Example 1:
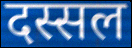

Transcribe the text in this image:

दस्सल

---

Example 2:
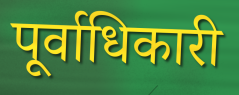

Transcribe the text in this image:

पूर्वाधिकारी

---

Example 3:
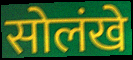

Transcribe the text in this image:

सोलंखे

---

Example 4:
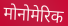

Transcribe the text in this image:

मोनोमेरिक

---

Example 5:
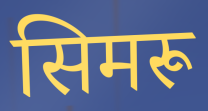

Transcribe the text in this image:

सिमरू